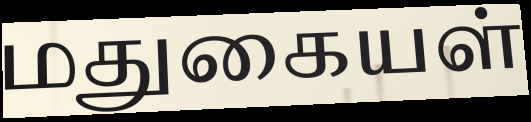
மதுகையள்